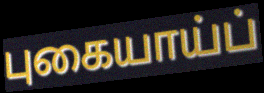
புகையாய்ப்